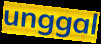
unggal